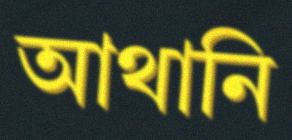
আথানি